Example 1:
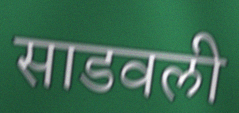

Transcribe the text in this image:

साडवली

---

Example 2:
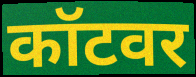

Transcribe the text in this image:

कॉटवर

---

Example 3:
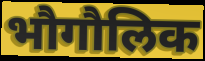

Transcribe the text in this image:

भौगौलिक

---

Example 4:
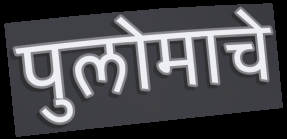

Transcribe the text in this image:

पुलोमाचे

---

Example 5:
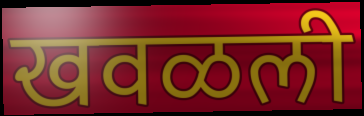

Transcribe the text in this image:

खवळली